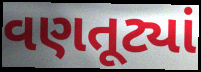
વણતૂટ્યાં